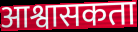
आश्वासकता